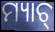
ମ୍ୟାଚ୍